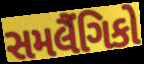
સમલૈંગિકો